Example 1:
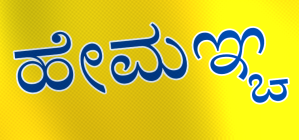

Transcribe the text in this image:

ಹೇಮಞ್ಚ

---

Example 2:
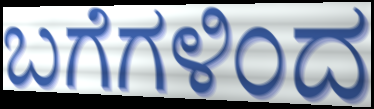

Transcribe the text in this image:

ಬಗೆಗಳಿಂದ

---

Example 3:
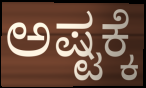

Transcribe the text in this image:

ಅಷ್ಟಕ್ಕೆ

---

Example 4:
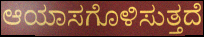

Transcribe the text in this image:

ಆಯಾಸಗೊಳಿಸುತ್ತದೆ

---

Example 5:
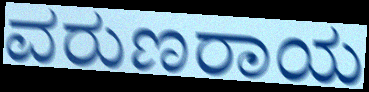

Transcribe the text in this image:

ವರುಣರಾಯ